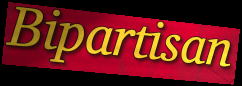
Bipartisan